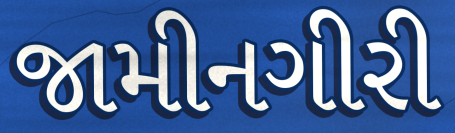
જામીનગીરી